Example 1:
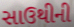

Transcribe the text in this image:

સાઉથીની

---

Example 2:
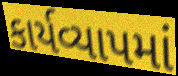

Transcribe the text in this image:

કાર્યવ્યાપમાં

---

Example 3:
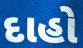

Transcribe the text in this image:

દાહો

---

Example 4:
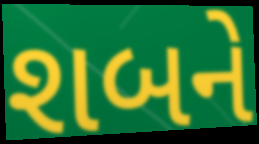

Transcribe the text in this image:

શબને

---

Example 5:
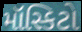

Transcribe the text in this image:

મૉસ્કિટો